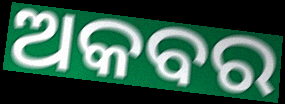
ଅକବର